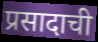
प्रसादाची